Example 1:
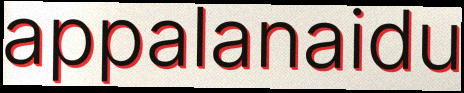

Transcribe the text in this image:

appalanaidu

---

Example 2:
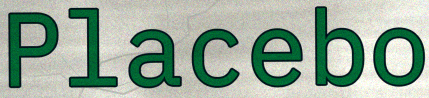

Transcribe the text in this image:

Placebo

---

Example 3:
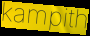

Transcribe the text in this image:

kampith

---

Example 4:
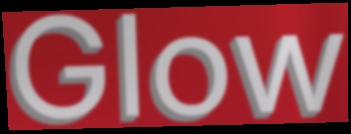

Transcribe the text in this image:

Glow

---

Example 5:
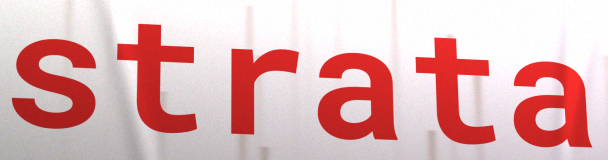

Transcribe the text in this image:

strata